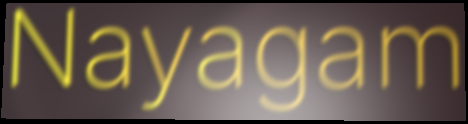
Nayagam